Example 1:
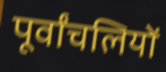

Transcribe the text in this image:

पूर्वांचलियों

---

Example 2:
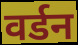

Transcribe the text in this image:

वर्डन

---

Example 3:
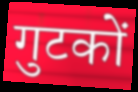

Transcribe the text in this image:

गुटकों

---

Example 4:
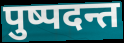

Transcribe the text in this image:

पुष्पदन्त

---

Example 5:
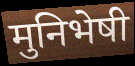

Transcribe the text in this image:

मुनिभेषी